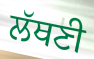
ਲੱਥਣੀ